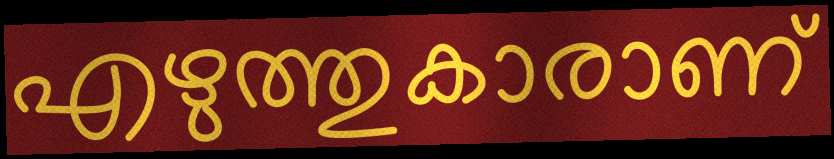
എഴുത്തുകാരാണ്